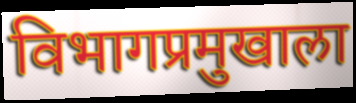
विभागप्रमुखाला